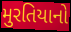
મુરતિયાનો